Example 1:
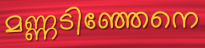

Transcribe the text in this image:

മണ്ണടിഞ്ഞേനെ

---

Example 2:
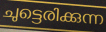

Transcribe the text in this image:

ചുട്ടെരിക്കുന്ന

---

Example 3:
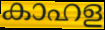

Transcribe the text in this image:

കാഹള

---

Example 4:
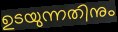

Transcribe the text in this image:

ഉടയുന്നതിനും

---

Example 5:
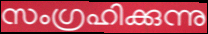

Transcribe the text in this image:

സംഗ്രഹിക്കുന്നു